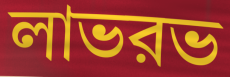
লাভরভ